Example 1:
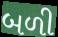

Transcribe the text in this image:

બળી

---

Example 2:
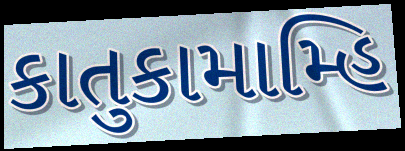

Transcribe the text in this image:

કાતુકામામ્હિ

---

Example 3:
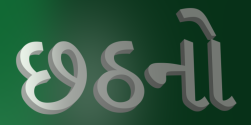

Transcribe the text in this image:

છઠનો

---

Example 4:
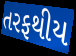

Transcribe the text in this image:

તરફથીય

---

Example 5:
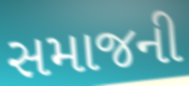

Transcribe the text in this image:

સમાજની